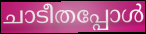
ചാടീതപ്പോൾ